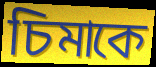
চিমাকে